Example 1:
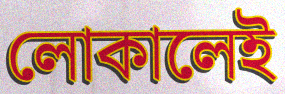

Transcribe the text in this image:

লোকালেই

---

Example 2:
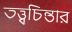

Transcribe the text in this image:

তত্ত্বচিন্তার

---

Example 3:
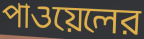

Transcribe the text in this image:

পাওয়েলের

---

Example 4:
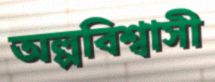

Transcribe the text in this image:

অল্পবিশ্বাসী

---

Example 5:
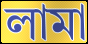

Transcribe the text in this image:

লামা